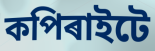
কপিৰাইটে